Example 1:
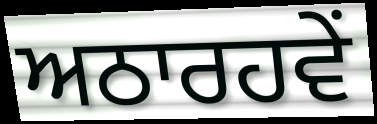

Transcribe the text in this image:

ਅਠਾਰਹਵੇਂ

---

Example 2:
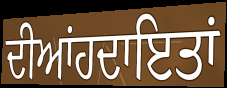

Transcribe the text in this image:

ਦੀਆਂਹਦਾਇਤਾਂ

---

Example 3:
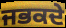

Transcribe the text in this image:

ਜਭਕਦੇ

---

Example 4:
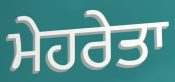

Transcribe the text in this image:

ਮੇਹਰੇਤਾ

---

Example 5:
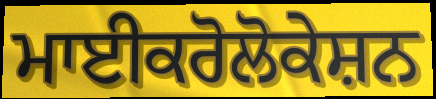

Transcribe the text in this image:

ਮਾਈਕਰੋਲੋਕੇਸ਼ਨ